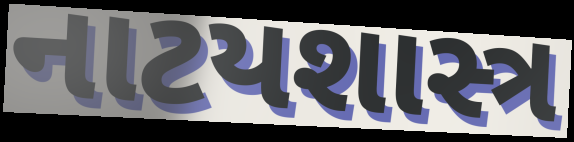
નાટયશાસ્ત્ર